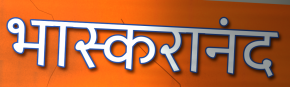
भास्करानंद